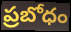
ప్రబోధం